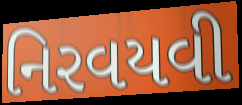
નિરવયવી